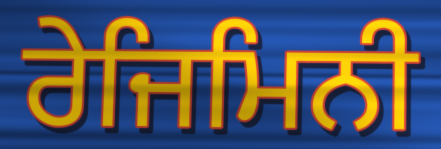
ਰੇਜਿਮਿਨੀ